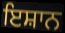
ਇਸ਼ਾਨ